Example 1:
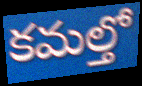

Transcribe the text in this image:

కమల్తో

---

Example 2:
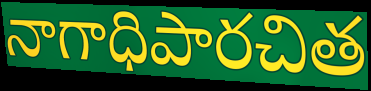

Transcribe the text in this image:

నాగాధిపారచిత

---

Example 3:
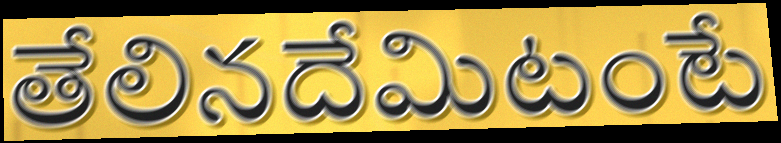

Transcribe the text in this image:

తేలినదేమిటంటే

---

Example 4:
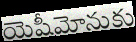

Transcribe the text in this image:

యెషీమోనుకు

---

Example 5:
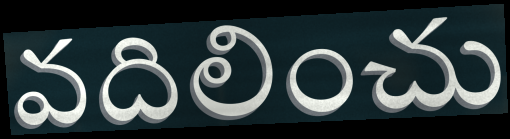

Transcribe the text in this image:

వదిలించు